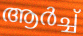
ആർച്ച്